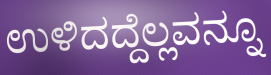
ಉಳಿದದ್ದೆಲ್ಲವನ್ನೂ